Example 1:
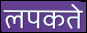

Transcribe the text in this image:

लपकते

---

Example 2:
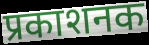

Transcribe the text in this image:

प्रकाशनक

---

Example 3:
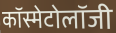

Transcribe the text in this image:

कॉस्मेटोलॉजी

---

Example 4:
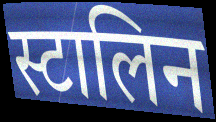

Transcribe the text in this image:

स्टालिन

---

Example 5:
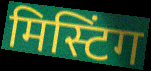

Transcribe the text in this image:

मिस्टिंग